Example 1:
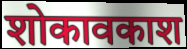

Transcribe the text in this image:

शोकावकाश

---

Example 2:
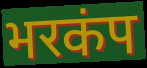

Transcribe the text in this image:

भरकंप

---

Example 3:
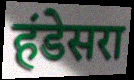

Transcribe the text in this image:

हंडेसरा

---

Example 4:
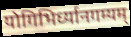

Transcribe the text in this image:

योगिभिर्ध्यानगम्यम्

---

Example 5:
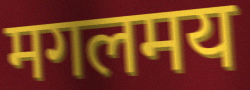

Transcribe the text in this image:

मगलमय